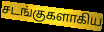
சடங்குகளாகிய